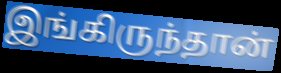
இங்கிருந்தான்